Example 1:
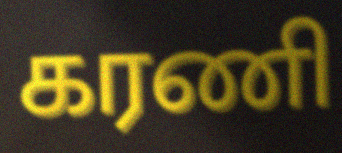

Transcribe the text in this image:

கரணி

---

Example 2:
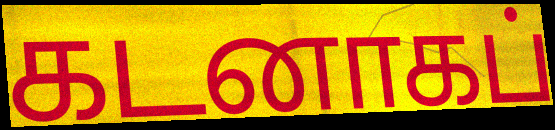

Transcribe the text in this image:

கடனாகப்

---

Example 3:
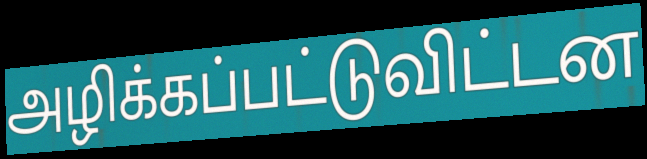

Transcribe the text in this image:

அழிக்கப்பட்டுவிட்டன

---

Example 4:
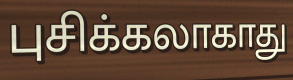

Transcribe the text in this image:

புசிக்கலாகாது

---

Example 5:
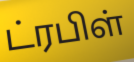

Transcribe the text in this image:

ட்ரபிள்